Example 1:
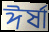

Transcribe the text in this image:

ঈৰ্ষা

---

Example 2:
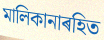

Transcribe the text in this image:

মালিকানাৰহিত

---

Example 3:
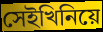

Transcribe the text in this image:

সেইখিনিয়ে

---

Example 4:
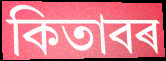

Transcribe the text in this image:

কিতাবৰ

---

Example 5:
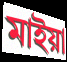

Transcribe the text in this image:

মাইয়া